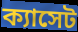
ক্যাসেট